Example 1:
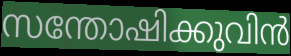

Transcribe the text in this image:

സന്തോഷിക്കുവിൻ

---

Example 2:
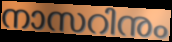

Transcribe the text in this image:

നാസറിനും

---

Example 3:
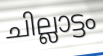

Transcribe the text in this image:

ചില്ലാട്ടം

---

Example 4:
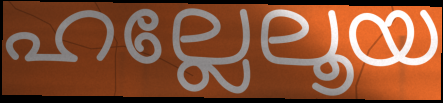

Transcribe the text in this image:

ഹല്ലേലൂയ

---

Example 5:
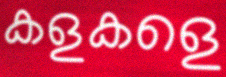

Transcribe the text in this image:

കളകളെ